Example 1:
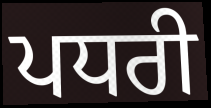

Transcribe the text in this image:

ਪਧਰੀ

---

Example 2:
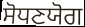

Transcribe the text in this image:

ਸੋਧਣਯੋਗ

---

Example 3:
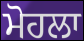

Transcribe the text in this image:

ਮੋਹਲਾ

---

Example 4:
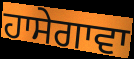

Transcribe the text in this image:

ਹਾਸੇਗਾਵਾ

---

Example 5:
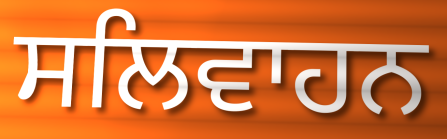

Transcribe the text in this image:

ਸਲਿਵਾਹਨ